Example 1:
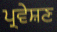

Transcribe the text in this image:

ਪ੍ਰਵੇਸ਼ਣ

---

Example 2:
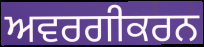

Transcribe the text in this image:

ਅਵਰਗੀਕਰਨ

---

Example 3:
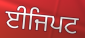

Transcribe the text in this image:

ਈਜਿਪਟ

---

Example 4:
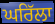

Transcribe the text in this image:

ਘਰਿੱਲਾ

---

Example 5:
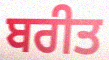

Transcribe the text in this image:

ਬਰੀਤ